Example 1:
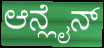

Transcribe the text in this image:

ಆನ್ಲೈನ್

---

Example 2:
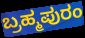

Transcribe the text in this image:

ಬ್ರಹ್ಮಪುರಂ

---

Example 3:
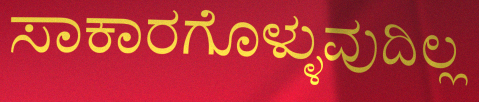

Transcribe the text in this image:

ಸಾಕಾರಗೊಳ್ಳುವುದಿಲ್ಲ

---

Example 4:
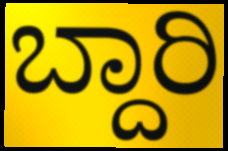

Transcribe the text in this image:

ಬ್ದಾರಿ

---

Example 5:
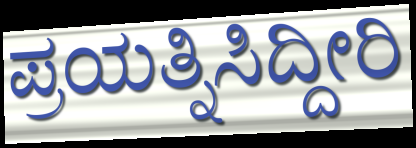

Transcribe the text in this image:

ಪ್ರಯತ್ನಿಸಿದ್ದೀರಿ